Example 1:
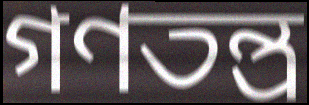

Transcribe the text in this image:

গণতন্ত্ৰ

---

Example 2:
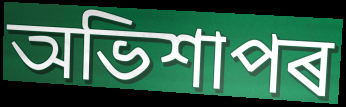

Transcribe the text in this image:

অভিশাপৰ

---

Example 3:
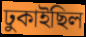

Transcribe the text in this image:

ঢুকাইছিল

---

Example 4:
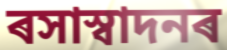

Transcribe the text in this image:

ৰসাস্বাদনৰ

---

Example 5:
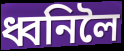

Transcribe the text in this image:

ধ্বনিলৈ